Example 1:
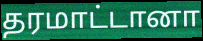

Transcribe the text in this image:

தரமாட்டானா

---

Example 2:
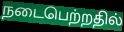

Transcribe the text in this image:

நடைபெற்றதில்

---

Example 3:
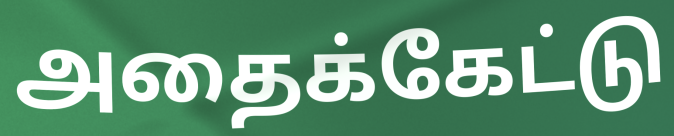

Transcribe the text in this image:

அதைக்கேட்டு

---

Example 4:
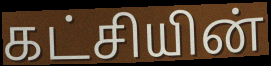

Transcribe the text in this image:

கட்சியின்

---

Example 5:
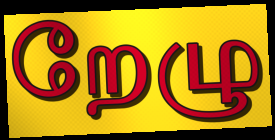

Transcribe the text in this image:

றேழு